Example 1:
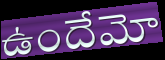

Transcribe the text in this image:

ఉందేమో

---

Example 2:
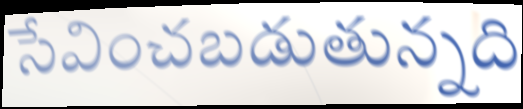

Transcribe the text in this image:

సేవించబడుతున్నది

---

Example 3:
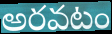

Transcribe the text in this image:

అరవటం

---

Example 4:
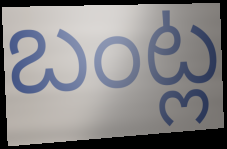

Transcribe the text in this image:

బంట్ల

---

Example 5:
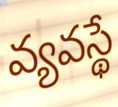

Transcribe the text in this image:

వ్యవస్థే